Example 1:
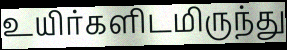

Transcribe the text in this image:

உயிர்களிடமிருந்து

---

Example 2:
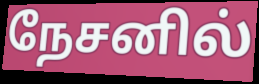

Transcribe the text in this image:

நேசனில்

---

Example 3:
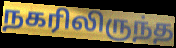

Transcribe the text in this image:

நகரிலிருந்த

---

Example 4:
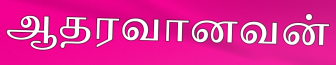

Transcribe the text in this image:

ஆதரவானவன்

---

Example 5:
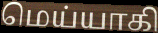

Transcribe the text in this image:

மெய்யாகி